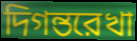
দিগন্তরেখা